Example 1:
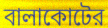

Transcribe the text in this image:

বালাকোটের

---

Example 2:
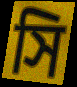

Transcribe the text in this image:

সি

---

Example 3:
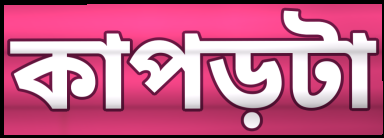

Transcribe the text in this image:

কাপড়টা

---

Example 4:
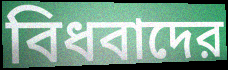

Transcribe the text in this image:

বিধবাদের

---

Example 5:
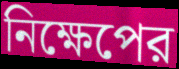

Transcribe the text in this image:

নিক্ষেপের